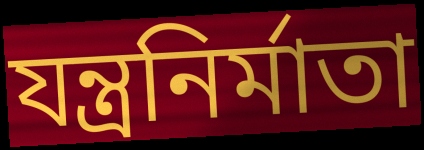
যন্ত্রনির্মাতা